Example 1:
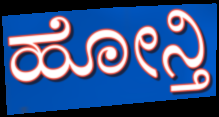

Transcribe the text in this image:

ಹೋನ್ತಿ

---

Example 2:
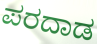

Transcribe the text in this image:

ಪರದಾಡ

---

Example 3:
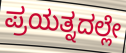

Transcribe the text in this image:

ಪ್ರಯತ್ನದಲ್ಲೇ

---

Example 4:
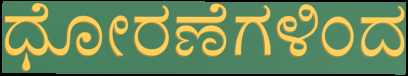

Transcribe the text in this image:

ಧೋರಣೆಗಳಿಂದ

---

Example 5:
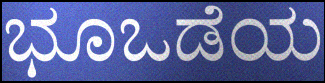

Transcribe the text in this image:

ಭೂಒಡೆಯ